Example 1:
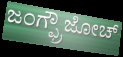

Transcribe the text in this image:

ಜಂಗ್ಫ್ರೌಜೋಚ್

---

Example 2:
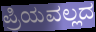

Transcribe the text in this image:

ಪ್ರಿಯವಲ್ಲದ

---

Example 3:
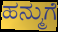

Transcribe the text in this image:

ಹನ್ಮುಗೆ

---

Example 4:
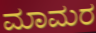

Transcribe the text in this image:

ಮಾಮರ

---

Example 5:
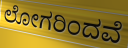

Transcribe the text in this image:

ಲೋಗರಿಂದವೆ